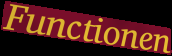
Functionen